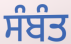
ਸੰਬੰਤ